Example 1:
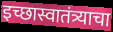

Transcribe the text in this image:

इच्छास्वातंत्र्याचा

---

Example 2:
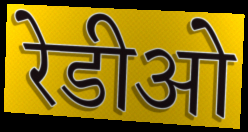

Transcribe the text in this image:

रेडीओ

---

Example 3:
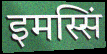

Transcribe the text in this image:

इमस्सिं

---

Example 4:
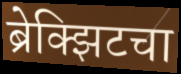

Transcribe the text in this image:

ब्रेक्झिटचा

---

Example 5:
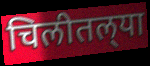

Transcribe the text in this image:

चिलीतल्या